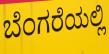
ಬೆಂಗರೆಯಲ್ಲಿ